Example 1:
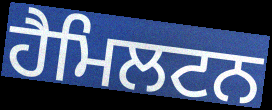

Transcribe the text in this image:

ਹੈਮਿਲਟਨ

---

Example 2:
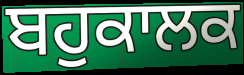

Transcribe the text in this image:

ਬਹੁਕਾਲਕ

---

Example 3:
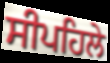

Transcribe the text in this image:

ਸੀਪਹਿਲੇ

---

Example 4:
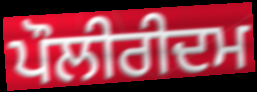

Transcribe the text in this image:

ਪੌਲੀਰੀਦਮ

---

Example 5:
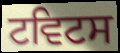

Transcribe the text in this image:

ਟਵਿਟਸ